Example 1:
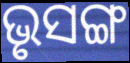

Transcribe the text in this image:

ଭୃସଙ୍ଗ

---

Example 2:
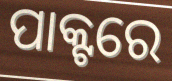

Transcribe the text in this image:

ପାକ୍ଟରେ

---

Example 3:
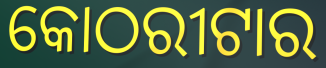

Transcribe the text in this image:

କୋଠରୀଟାର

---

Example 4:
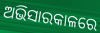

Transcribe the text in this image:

ଅଭିସାରକାଳରେ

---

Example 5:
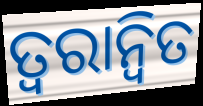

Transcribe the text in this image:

ତ୍ୱରାନ୍ଵିତ